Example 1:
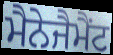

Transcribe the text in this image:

ਮੈਨੇਜੈਮੈਂਟ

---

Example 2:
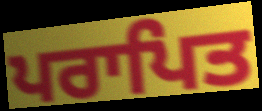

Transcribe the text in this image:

ਪਰਾਪਿਤ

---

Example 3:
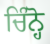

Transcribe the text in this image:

ਚਿੰਨ੍ਹੋ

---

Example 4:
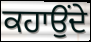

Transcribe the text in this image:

ਕਹਾਉਂਦੇ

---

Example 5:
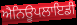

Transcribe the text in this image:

ਐਨਿਊਪਲਾਇਡੀ